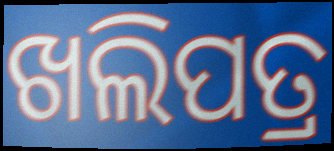
ଖଲିପତ୍ର